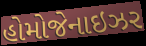
હોમોજેનાઇઝર